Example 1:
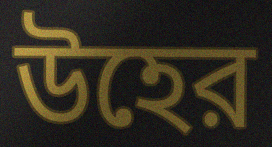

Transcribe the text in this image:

উহের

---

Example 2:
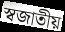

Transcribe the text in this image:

স্বজাতীয়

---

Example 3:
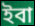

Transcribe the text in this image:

ইবা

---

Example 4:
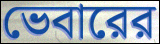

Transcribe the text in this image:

ভেবারের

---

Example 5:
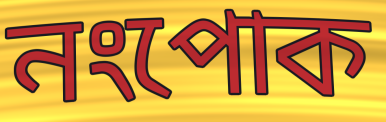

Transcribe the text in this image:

নংপোক